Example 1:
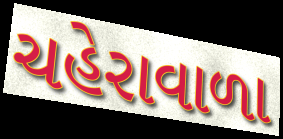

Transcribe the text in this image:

ચહેરાવાળા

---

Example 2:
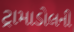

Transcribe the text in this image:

ટ્રામાડોલની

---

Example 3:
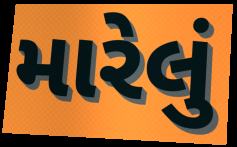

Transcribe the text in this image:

મારેલું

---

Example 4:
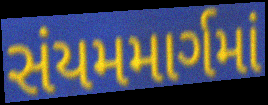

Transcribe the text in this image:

સંયમમાર્ગમાં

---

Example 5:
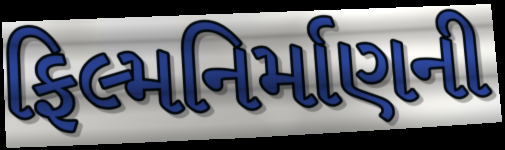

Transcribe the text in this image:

ફિલ્મનિર્માણની